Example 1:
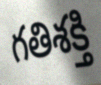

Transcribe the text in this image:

గతిశక్తి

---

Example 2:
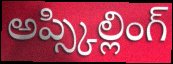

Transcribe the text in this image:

అప్స్కిల్లింగ్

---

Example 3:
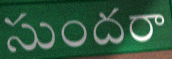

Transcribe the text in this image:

సుందరా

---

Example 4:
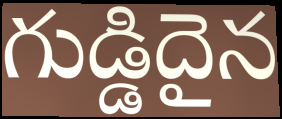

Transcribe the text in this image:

గుడ్డిదైన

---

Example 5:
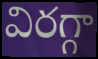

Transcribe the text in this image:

విరగ్గా